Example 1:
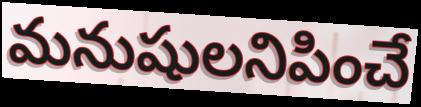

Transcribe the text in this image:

మనుషులనిపించే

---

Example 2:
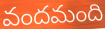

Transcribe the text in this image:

వందమంది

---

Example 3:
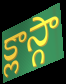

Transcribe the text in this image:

క్లాస్గా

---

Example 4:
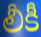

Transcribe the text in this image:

లీకీ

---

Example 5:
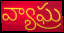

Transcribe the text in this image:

వ్యాఘ్ర